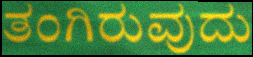
ತಂಗಿರುವುದು